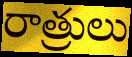
రాత్రులు